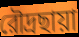
রৌদ্রছায়া